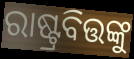
ରାଷ୍ଟ୍ରବିତ୍ତଙ୍କୁ